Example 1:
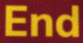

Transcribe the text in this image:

End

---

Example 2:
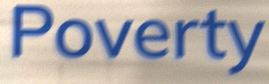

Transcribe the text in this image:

Poverty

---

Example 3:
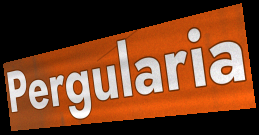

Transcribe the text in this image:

Pergularia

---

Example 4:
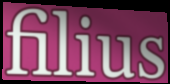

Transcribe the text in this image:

filius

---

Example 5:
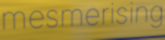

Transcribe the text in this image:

mesmerising